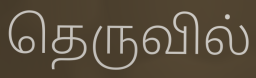
தெருவில்